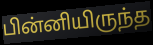
பின்னியிருந்த